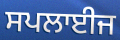
ਸਪਲਾਈਜ